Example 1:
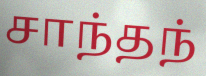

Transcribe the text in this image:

சாந்தந்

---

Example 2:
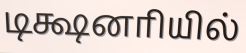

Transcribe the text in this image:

டிக்ஷனரியில்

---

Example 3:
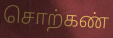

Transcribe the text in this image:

சொற்கண்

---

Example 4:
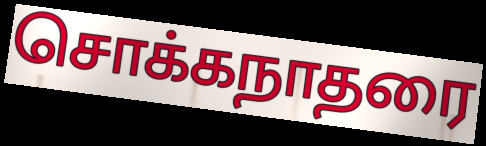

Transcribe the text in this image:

சொக்கநாதரை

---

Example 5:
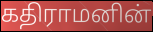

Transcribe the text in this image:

கதிராமனின்